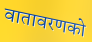
वातावरणको